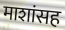
माशांसह